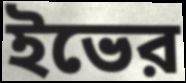
ইভের